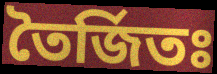
তৈর্জিতঃ